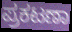
ಪ್ರಕಟಣಾ